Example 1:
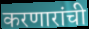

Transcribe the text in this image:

करणारांची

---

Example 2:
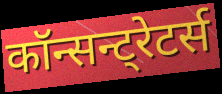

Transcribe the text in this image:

कॉन्सन्ट्रेटर्स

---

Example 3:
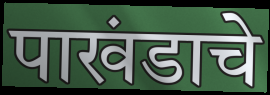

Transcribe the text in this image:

पाखंडाचे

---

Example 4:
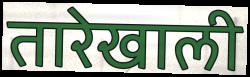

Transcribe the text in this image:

तारेखाली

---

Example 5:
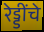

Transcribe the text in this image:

रेड्डींचे